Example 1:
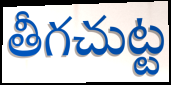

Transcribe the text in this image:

తీగచుట్ట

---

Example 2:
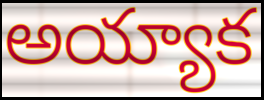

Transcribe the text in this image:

అయ్యాక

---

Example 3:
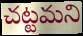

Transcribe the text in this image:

చట్టమని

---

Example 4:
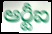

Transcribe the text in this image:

ఆర్టీఐ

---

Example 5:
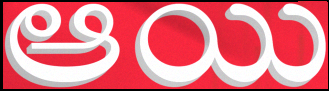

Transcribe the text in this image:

ఆయి